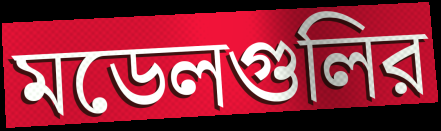
মডেলগুলির